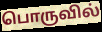
பொருவில்